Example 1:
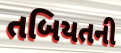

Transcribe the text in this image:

તબિયતની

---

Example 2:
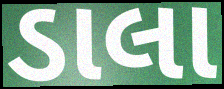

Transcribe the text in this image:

ડાલા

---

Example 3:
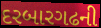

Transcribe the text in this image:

દરબારગઢની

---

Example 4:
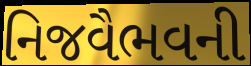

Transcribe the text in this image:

નિજવૈભવની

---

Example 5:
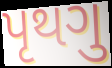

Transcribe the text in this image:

પૃથગુ